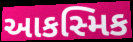
આકસ્મિક